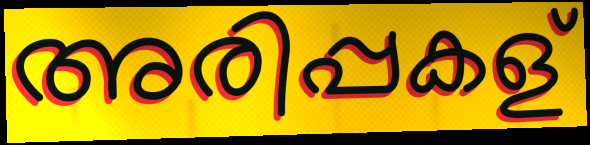
അരിപ്പകള്